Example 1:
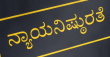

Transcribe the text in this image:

ನ್ಯಾಯನಿಷ್ಠುರತೆ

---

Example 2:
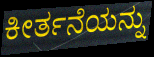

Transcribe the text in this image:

ಕೀರ್ತನೆಯನ್ನು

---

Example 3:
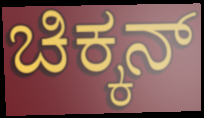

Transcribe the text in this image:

ಚಿಕ್ಕನ್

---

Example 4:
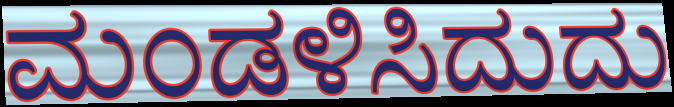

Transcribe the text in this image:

ಮಂಡಳಿಸಿದುದು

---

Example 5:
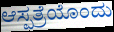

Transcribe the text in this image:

ಆಸ್ಪತ್ರೆಯೊಂದು